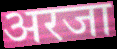
अरजा